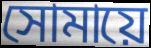
সোমায়ে